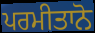
ਪਰਮੀਤਾਨੋ